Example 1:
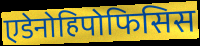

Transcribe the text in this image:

एडेनोहिपोफिसिस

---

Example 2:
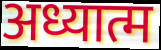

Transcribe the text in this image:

अध्यात्म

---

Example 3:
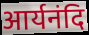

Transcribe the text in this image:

आर्यनंदि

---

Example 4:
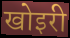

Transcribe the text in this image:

खोइरी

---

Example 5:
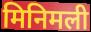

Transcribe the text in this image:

मिनिमली